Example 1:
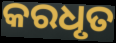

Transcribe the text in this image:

କରଧୃତ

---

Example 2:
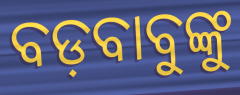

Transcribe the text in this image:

ବଡ଼ବାବୁଙ୍କୁ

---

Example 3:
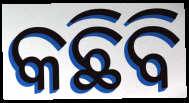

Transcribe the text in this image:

କଛିବି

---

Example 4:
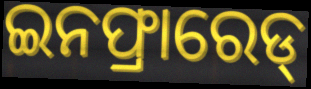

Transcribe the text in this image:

ଇନଫ୍ରାରେଡ୍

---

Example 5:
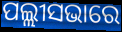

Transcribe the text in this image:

ପଲ୍ଲୀସଭାରେ